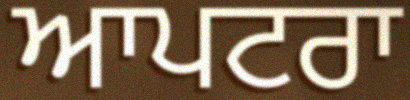
ਆਪਟਰਾ